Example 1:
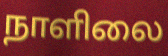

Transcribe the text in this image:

நாளிலை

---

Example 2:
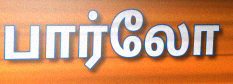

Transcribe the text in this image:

பார்லோ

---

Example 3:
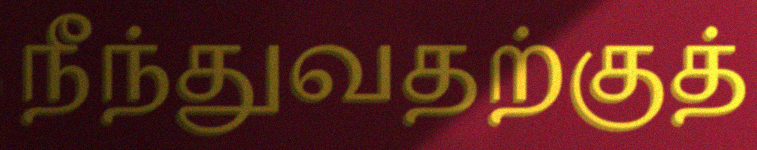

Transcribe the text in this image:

நீந்துவதற்குத்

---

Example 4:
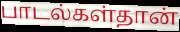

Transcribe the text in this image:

பாடல்கள்தான்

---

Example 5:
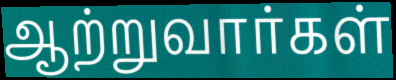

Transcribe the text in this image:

ஆற்றுவார்கள்